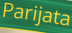
Parijata